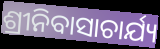
ଶ୍ରୀନିବାସାଚାର୍ଯ୍ୟ